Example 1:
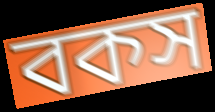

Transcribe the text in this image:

বকস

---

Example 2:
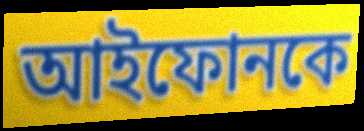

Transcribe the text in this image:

আইফোনকে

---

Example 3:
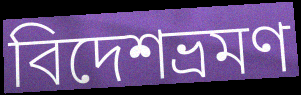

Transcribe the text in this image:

বিদেশভ্রমণ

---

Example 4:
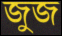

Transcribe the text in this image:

জুজ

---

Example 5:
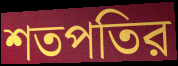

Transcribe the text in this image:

শতপতির